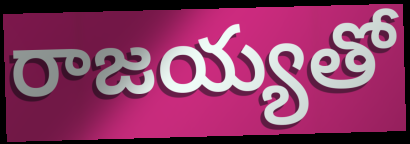
రాజయ్యతో